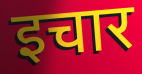
इचार